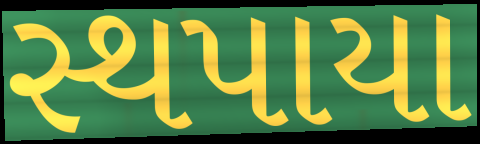
સ્થપાયા